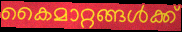
കൈമാറ്റങ്ങൾക്ക്